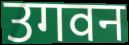
उगवन